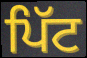
ਪਿੱਟ